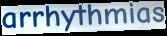
arrhythmias